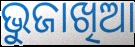
ଭୁଜାଖିଆ